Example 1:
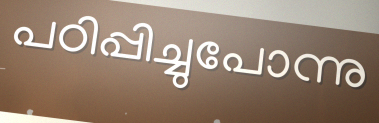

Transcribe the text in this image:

പഠിപ്പിച്ചുപോന്നു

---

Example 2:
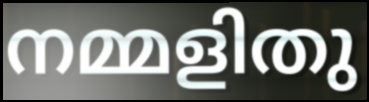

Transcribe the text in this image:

നമ്മളിതു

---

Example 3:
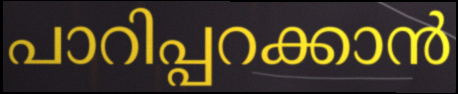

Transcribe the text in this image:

പാറിപ്പറക്കാൻ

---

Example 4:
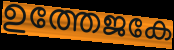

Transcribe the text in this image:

ഉത്തേജകേ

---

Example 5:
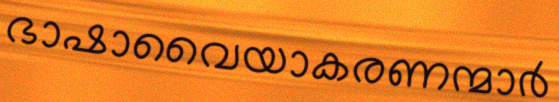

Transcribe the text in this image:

ഭാഷാവൈയാകരണന്മാർ